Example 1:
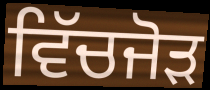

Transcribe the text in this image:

ਵਿੱਚਜੋੜ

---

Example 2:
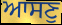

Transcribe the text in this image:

ਆਸਣੁ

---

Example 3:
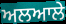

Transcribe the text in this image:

ਅਲਆਲੇ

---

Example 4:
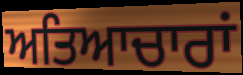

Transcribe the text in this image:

ਅਤਿਆਚਾਰਾਂ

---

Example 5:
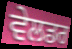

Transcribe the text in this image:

ਵੇਲਡਰ